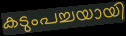
കടുംപച്ചയായി